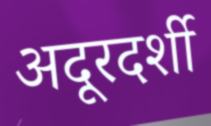
अदूरदर्शी